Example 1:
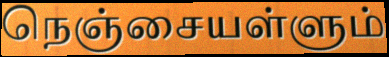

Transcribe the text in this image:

நெஞ்சையள்ளும்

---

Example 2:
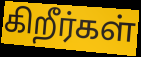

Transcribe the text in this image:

கிறீர்கள்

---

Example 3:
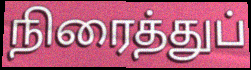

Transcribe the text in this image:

நிரைத்துப்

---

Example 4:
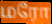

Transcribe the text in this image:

மரோ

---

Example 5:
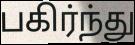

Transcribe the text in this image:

பகிர்ந்து